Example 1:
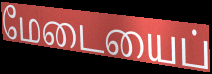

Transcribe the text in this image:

மேடையைப்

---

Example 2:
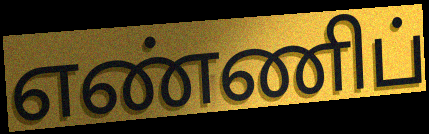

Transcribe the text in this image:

எண்ணிப்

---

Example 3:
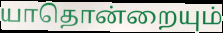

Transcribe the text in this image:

யாதொன்றையும்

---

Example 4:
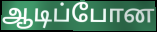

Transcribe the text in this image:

ஆடிப்போன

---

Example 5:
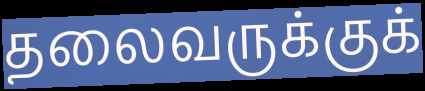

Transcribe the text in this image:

தலைவருக்குக்